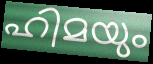
ഹിമയും